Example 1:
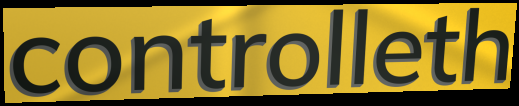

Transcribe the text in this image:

controlleth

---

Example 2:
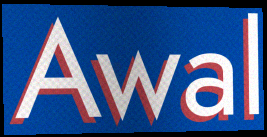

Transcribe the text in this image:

Awal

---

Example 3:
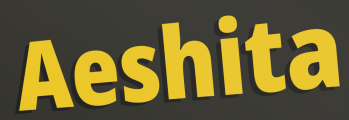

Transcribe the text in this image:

Aeshita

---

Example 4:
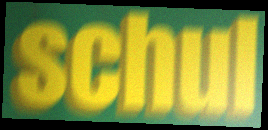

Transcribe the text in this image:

schul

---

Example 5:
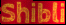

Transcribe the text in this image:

Shibli